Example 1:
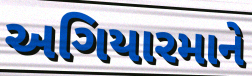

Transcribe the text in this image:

અગિયારમાને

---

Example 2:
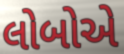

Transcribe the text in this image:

લોબોએ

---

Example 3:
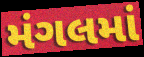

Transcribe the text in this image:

મંગલમાં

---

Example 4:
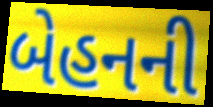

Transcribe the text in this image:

બેહનની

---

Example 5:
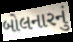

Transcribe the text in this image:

બોલનારનું